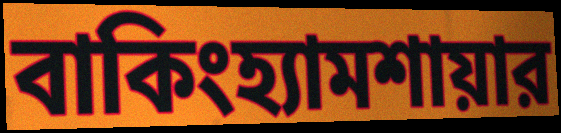
বাকিংহ্যামশায়ার